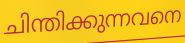
ചിന്തിക്കുന്നവനെ